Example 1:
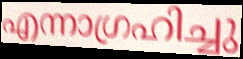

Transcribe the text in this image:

എന്നാഗ്രഹിച്ചു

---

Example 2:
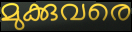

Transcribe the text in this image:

മുക്കുവരെ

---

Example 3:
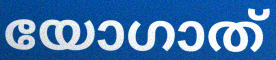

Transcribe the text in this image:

യോഗാത്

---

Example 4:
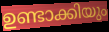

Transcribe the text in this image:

ഉണ്ടാക്കിയും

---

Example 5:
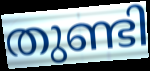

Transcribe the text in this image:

തുണ്ടി